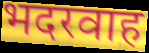
भदरवाह